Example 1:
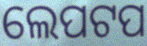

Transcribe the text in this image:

ଲେପଟପ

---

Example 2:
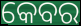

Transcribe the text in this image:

କେବର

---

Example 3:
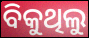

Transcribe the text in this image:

ବିକୁଥିଲୁ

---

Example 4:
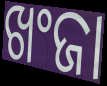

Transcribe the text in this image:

ଖଂଜା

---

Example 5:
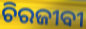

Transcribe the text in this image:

ଚିରଜୀବୀ